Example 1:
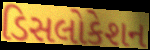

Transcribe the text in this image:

ડિસલોકેશન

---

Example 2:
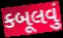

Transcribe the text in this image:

કબૂલવું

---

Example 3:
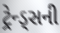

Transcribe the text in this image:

ટ્રેન્ડ્સની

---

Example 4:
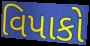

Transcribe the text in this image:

વિપાકો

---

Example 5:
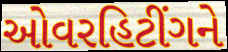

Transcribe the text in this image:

ઓવરહિટીંગને